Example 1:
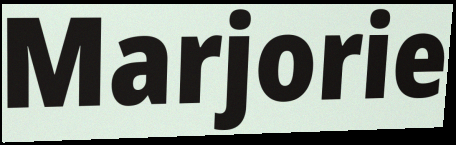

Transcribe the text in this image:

Marjorie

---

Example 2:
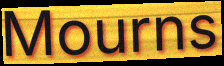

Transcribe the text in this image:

Mourns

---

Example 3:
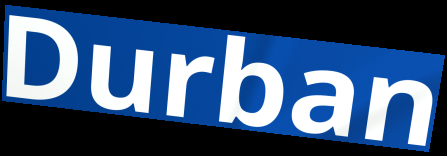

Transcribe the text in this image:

Durban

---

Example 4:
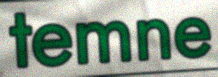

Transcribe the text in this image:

temne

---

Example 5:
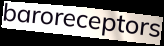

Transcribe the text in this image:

baroreceptors